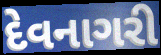
દેવનાગરી